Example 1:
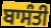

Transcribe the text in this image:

ਬਾਸੰਤੀ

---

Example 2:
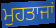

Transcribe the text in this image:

ਮੁਹਤਾਜਾਂ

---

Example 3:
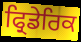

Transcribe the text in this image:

ਫ੍ਰਿਡੇਰਿਕ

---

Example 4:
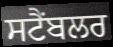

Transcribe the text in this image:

ਸਟੈਂਬਲਰ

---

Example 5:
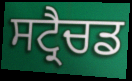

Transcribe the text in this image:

ਸਟ੍ਰੈਚਡ